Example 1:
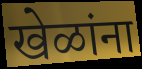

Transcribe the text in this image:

खेळांना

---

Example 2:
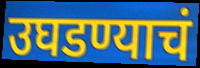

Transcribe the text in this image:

उघडण्याचं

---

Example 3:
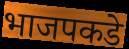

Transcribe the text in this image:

भाजपकडे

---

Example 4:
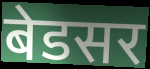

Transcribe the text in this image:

बेडसर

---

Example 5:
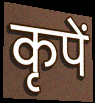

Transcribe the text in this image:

कृपें